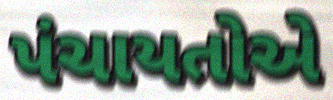
પંચાયતોએ